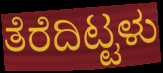
ತೆರೆದಿಟ್ಟಳು